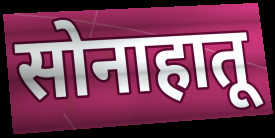
सोनाहातू